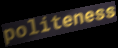
politeness